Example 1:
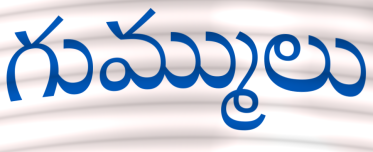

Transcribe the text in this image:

గుమ్ములు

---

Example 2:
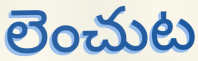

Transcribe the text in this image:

లెంచుట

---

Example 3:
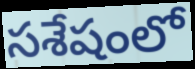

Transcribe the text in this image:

సశేషంలో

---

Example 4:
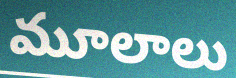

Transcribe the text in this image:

మూలాలు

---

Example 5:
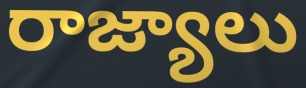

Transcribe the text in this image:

రాజ్యాలు